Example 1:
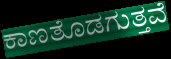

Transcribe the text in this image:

ಕಾಣತೊಡಗುತ್ತವೆ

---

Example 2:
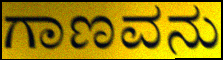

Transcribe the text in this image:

ಗಾಣವನು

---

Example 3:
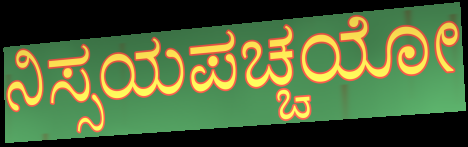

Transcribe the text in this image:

ನಿಸ್ಸಯಪಚ್ಚಯೋ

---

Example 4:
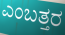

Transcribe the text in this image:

ಎಂಬತ್ತರ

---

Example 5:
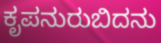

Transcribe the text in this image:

ಕೃಪನುರುಬಿದನು